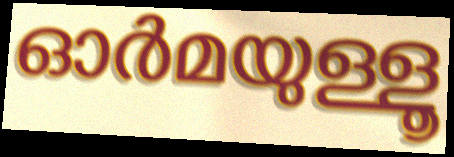
ഓർമയുള്ളൂ